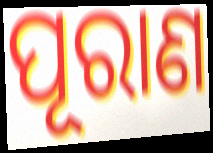
ପୂରାଣ